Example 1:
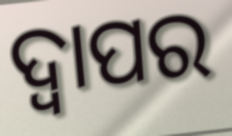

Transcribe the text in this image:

ଦ୍ୱାପର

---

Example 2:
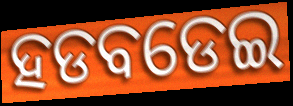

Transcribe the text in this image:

ହଡବଡେଇ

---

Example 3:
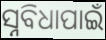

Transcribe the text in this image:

ସ୍ନବିଧାପାଇଁ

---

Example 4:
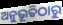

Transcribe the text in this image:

ଅନୁଭୂତିଠାରୁ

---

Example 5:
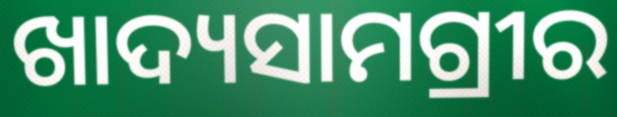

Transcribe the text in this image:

ଖାଦ୍ୟସାମଗ୍ରୀର